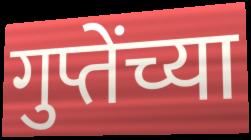
गुप्तेंच्या